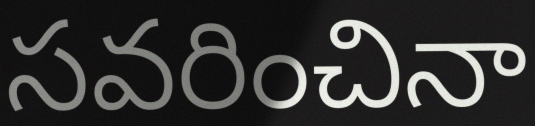
సవరించినా